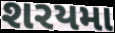
શરયમા